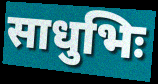
साधुभिः